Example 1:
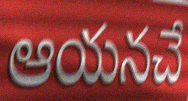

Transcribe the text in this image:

ఆయనచే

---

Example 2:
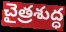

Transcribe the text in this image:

చైత్రశుద్ధ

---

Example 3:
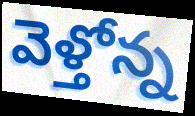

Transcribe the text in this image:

వెళ్తోన్న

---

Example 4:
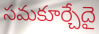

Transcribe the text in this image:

సమకూర్చేదై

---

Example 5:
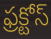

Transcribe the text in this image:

ఫ్రక్టోస్